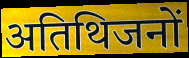
अतिथिजनों